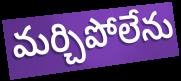
మర్చిపోలేను